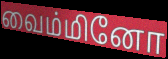
வைம்மினோ